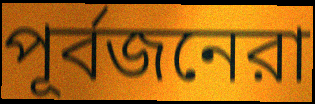
পূর্বজনেরা